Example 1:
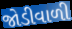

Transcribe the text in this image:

જોડીવાળી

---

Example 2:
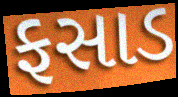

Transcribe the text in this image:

ફસાડ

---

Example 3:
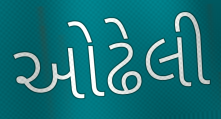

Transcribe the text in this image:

ઓઢેલી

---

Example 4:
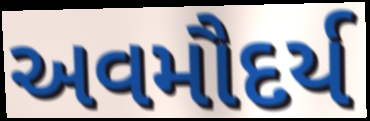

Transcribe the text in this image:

અવમૌદર્ય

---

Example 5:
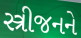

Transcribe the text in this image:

સ્ત્રીજનને